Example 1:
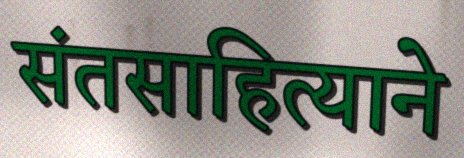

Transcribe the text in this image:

संतसाहित्याने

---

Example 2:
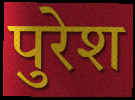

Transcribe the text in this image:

पुरेश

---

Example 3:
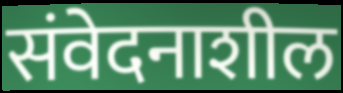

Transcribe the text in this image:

संवेदनाशील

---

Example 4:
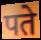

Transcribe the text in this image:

पते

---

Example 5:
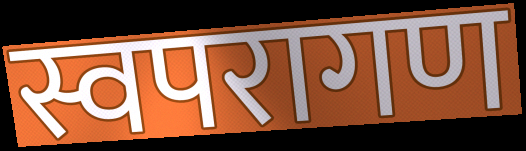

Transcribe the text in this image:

स्वपरागण